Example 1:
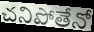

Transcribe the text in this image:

చనిపోతేనో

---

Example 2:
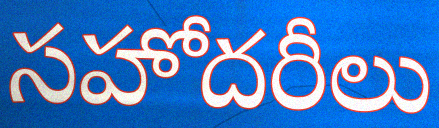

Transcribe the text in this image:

సహోదరీలు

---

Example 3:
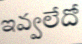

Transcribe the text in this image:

ఇవ్వలేదో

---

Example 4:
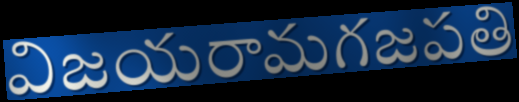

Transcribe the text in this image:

విజయరామగజపతి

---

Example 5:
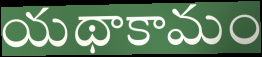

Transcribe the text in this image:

యథాకామం